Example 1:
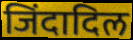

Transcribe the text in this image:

जिंदादिल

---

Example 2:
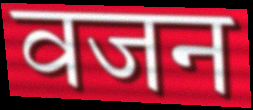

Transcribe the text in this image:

वजन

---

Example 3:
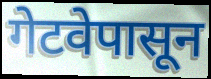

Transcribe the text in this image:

गेटवेपासून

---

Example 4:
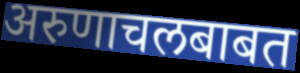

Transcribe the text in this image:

अरुणाचलबाबत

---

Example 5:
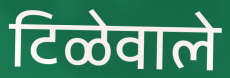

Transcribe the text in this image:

टिळेवाले